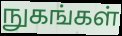
நுகங்கள்